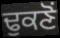
ਢੁਕਣੋਂ